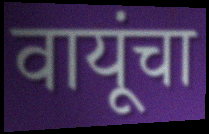
वायूंचा